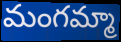
మంగమ్మా